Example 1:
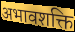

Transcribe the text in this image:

अभावशक्ति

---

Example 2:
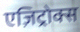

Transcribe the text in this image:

एज़िट्रोक्स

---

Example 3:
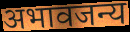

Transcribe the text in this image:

अभावजन्य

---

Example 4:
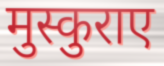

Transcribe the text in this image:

मुस्कुराए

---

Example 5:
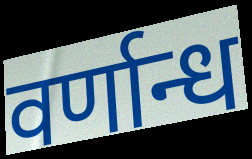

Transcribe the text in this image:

वर्णान्ध